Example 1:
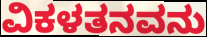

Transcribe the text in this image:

ವಿಕಳತನವನು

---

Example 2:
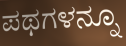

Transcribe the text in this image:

ಪಥಗಳನ್ನೂ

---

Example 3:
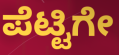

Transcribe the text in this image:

ಪೆಟ್ಟಿಗೇ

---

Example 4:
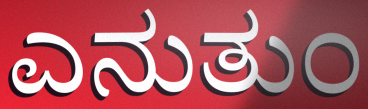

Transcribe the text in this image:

ಎನುತುಂ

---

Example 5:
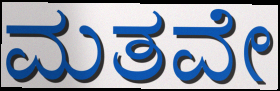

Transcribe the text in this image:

ಮತವೇ